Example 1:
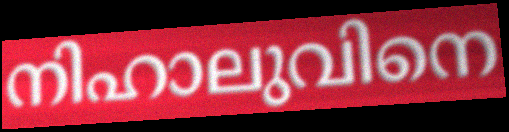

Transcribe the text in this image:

നിഹാലുവിനെ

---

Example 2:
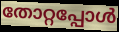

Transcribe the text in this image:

തോറ്റപ്പോൾ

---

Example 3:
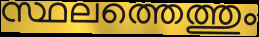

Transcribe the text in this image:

സ്ഥലത്തെത്തും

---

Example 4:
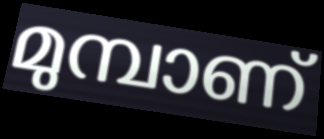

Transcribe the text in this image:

മുമ്പാണ്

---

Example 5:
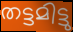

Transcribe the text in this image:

തട്ടമിട്ടു